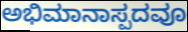
ಅಭಿಮಾನಾಸ್ಪದವೂ